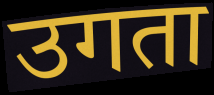
उगता